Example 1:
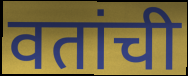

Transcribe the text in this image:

वतांची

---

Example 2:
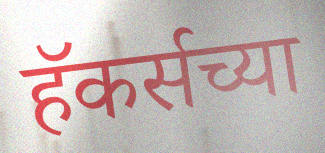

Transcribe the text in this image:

हॅकर्सच्या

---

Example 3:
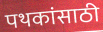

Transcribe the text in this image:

पथकांसाठी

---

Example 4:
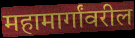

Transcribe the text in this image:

महामार्गांवरील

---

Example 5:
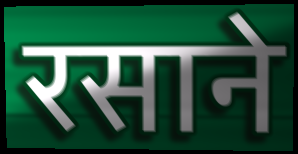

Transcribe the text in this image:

रसाने